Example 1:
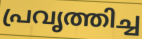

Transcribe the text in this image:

പ്രവൃത്തിച്ച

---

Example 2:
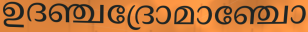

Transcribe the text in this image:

ഉദഞ്ചദ്രോമാഞ്ചോ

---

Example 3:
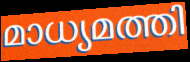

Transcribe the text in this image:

മാധ്യമത്തി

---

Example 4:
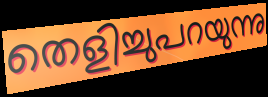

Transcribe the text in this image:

തെളിച്ചുപറയുന്നു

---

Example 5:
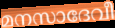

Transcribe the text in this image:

മനസാദേവീ